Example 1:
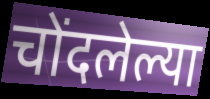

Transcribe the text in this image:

चोंदलेल्या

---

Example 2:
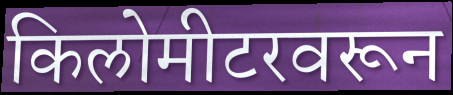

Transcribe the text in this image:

किलोमीटरवरून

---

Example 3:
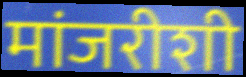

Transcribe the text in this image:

मांजरीशी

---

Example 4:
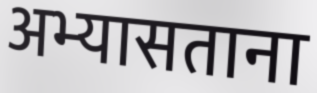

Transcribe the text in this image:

अभ्यासताना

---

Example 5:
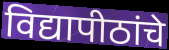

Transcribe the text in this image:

विद्यापीठांचे